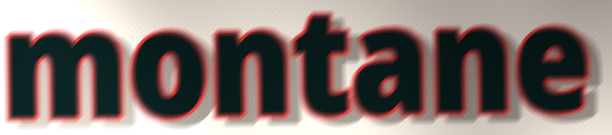
montane